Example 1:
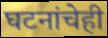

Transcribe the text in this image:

घटनांचेही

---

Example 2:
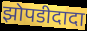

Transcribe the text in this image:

झोपडीदादा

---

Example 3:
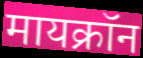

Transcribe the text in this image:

मायक्रॉन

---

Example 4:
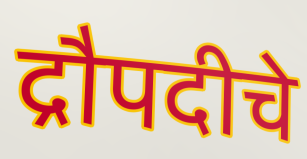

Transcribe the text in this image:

द्रौपदीचे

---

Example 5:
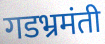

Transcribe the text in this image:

गडभ्रमंती